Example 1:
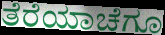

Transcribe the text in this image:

ತೆರೆಯಾಚೆಗೂ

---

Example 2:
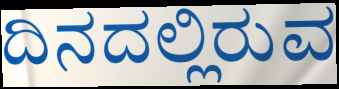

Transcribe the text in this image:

ದಿನದಲ್ಲಿರುವ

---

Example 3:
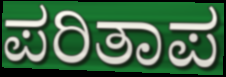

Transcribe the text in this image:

ಪರಿತಾಪ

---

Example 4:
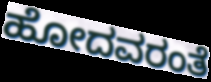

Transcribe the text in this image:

ಹೋದವರಂತೆ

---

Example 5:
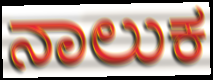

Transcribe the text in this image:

ನಾಲುಕ